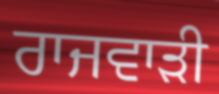
ਰਾਜਵਾੜੀ